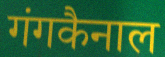
गंगकैनाल